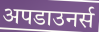
अपडाउनर्स